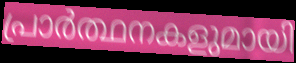
പ്രാർത്ഥനകളുമായി